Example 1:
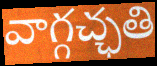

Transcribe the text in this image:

వాగ్గచ్ఛతి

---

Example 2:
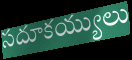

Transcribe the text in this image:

సదూకయ్యులు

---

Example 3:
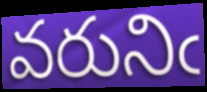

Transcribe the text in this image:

వరునిఁ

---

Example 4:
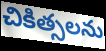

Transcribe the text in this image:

చికిత్సలను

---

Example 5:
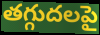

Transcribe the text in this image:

తగ్గుదలపై